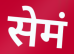
सेमं